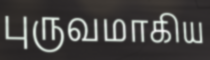
புருவமாகிய